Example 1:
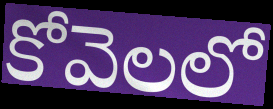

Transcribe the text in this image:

కోవెలలో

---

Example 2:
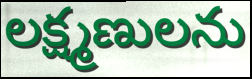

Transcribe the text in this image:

లక్ష్మణులను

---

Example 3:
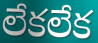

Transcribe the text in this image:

లేకలేక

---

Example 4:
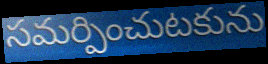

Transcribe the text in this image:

సమర్పించుటకును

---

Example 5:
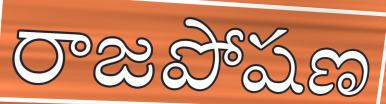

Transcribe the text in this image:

రాజపోషణ